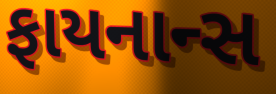
ફાયનાન્સ